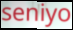
seniyo